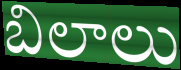
బిలాలు